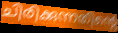
ചിരിക്കുന്നതിന്റെ